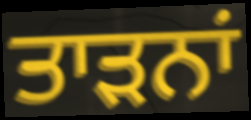
ਤਾੜਨਾਂ